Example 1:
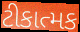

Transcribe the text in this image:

ટીકાત્મક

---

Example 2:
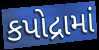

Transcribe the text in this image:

કપોદ્રામાં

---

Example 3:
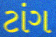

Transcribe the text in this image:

ટાંગ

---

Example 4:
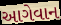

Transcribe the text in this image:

આગેવાન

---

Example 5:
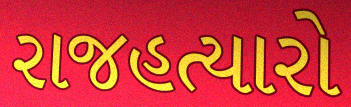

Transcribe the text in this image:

રાજહત્યારો